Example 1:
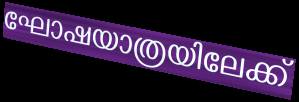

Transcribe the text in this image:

ഘോഷയാത്രയിലേക്ക്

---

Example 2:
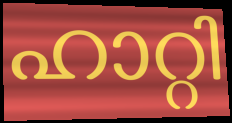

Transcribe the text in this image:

ഹാറ്റി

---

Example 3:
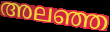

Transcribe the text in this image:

അലഞ്ഞ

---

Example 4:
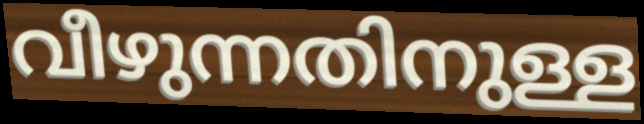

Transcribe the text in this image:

വീഴുന്നതിനുള്ള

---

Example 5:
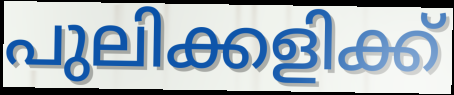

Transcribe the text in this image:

പുലിക്കളിക്ക്